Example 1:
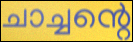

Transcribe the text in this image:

ചാച്ചന്റെ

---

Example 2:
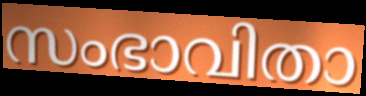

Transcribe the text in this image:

സംഭാവിതാ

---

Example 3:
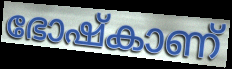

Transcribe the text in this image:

ഭോഷ്കാണ്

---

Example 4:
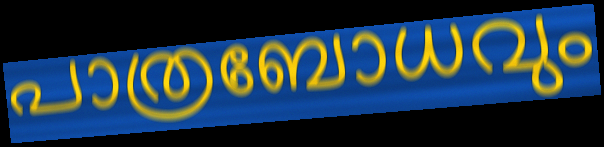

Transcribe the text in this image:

പാത്രബോധവും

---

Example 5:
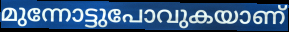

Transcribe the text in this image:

മുന്നോട്ടുപോവുകയാണ്